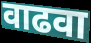
वाढवा